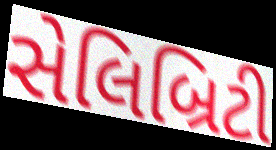
સેલિબ્રિટી